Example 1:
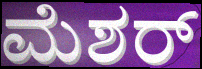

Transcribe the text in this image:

ಮೆಶರ್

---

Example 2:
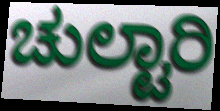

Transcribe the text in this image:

ಚುಲ್ಟಾರಿ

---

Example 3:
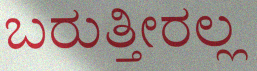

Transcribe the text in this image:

ಬರುತ್ತೀರಲ್ಲ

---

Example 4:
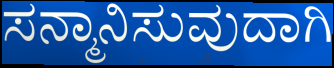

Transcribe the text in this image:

ಸನ್ಮಾನಿಸುವುದಾಗಿ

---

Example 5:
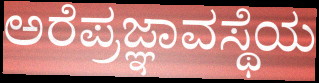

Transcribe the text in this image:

ಅರೆಪ್ರಜ್ಞಾವಸ್ಥೆಯ